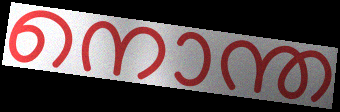
നൊന്ത